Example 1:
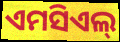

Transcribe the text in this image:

ଏମସିଏଲ୍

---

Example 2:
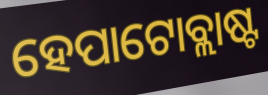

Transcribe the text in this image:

ହେପାଟୋବ୍ଲାଷ୍ଟ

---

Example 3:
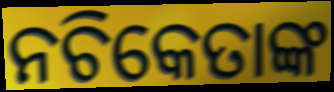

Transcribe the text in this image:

ନଚିକେତାଙ୍କ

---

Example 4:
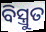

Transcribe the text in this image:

ବିସ୍ତ୍ରୁତ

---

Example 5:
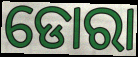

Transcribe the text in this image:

ଡୋରା